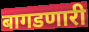
बागडणारी